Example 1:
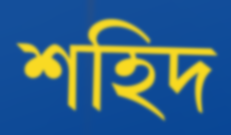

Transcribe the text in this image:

শহিদ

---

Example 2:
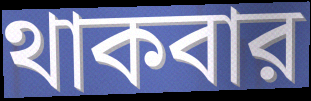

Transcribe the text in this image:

থাকবার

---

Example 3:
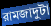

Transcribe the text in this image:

রামজাদুটা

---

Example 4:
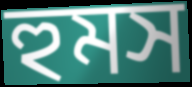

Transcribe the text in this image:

হুমস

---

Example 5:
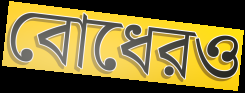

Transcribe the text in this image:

বোধেরও